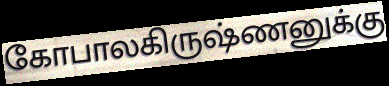
கோபாலகிருஷ்ணனுக்கு